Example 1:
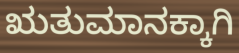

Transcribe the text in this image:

ಋತುಮಾನಕ್ಕಾಗಿ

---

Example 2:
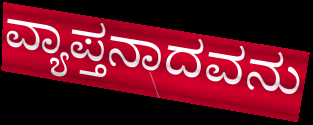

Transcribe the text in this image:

ವ್ಯಾಪ್ತನಾದವನು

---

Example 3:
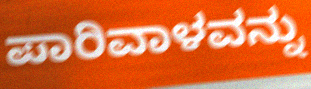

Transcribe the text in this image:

ಪಾರಿವಾಳವನ್ನು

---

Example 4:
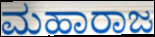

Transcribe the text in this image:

ಮಹಾರಾಜ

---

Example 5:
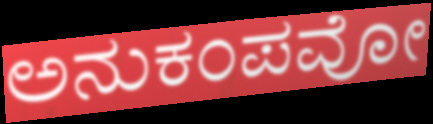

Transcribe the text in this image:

ಅನುಕಂಪವೋ